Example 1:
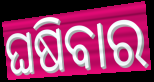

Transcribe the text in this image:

ଘଷିବାର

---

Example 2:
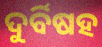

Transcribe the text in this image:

ଦୁର୍ବିଷହ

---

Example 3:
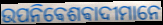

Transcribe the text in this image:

ଉପନିଵେଶଵାଦୀମାନେ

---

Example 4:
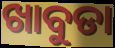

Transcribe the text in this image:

ଖାବୁଡା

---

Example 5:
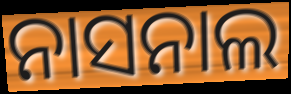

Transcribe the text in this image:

ନାସନାଲ